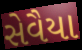
સેવૈયા